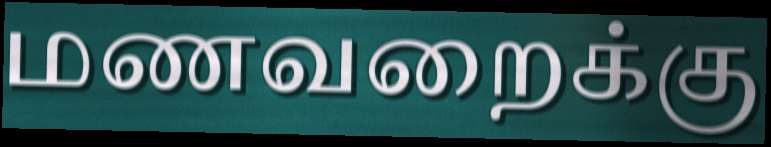
மணவறைக்கு